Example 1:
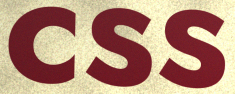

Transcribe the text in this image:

css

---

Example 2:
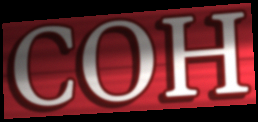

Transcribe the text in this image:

COH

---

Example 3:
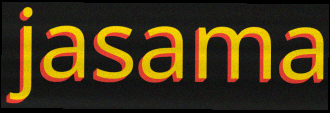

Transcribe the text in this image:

jasama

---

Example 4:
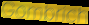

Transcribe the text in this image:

Gombrich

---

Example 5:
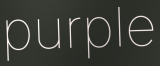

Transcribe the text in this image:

purple